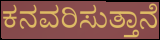
ಕನವರಿಸುತ್ತಾನೆ